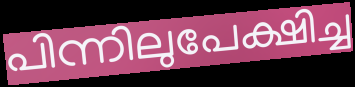
പിന്നിലുപേക്ഷിച്ച